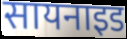
सायनाइड